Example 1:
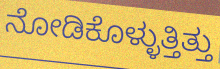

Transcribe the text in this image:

ನೋಡಿಕೊಳ್ಳುತ್ತಿತ್ತು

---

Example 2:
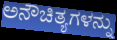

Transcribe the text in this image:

ಅನೌಚಿತ್ಯಗಳನ್ನು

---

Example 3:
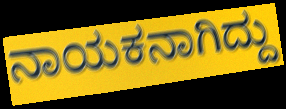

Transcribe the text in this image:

ನಾಯಕನಾಗಿದ್ದು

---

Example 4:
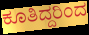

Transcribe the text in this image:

ಕೂತಿದ್ದರಿಂದ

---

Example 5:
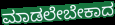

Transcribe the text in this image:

ಮಾಡಲೇಬೇಕಾದ